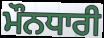
ਮੌਨਧਾਰੀ